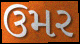
ઉમર